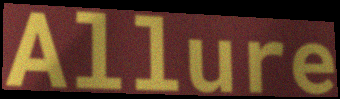
Allure